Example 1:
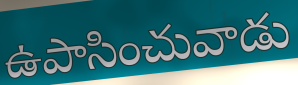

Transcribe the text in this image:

ఉపాసించువాడు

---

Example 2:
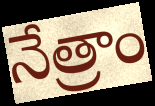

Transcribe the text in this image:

నేత్రాం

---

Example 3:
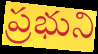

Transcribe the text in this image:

ప్రభుని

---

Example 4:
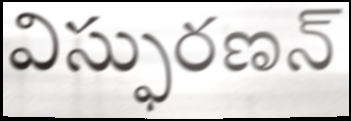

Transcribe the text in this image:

విస్ఫురణన్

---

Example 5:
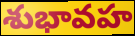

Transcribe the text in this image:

శుభావహ